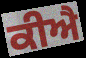
ਕੀਐ